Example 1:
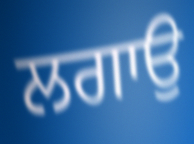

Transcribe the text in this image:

ਲਗਾਉੁ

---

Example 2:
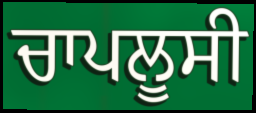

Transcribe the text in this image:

ਚਾਪਲੂਸੀ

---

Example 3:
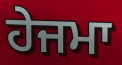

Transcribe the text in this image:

ਹੇਜਮਾ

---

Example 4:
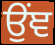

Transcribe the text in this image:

ਉਂਞ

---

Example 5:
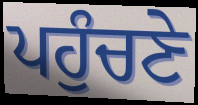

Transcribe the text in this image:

ਪਹੁੰਚਣੇ